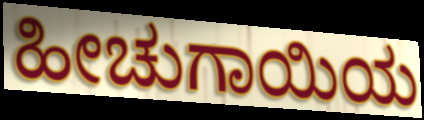
ಹೀಚುಗಾಯಿಯ